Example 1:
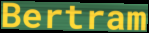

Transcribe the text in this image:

Bertram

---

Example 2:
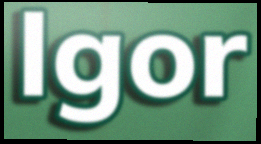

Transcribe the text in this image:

Igor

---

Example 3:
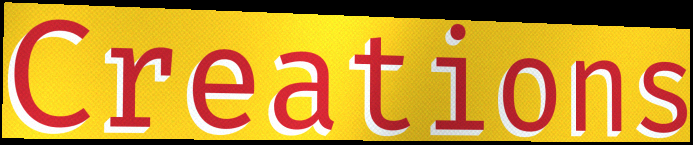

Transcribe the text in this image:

Creations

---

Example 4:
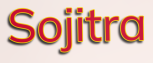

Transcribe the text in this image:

Sojitra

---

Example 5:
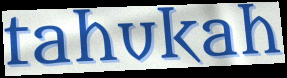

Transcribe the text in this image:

tahukah